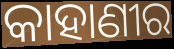
କାହାଣୀର